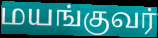
மயங்குவர்